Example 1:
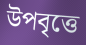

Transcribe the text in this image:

উপবৃত্তে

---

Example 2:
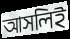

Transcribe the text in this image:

আসলিই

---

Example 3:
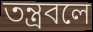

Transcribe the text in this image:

তন্ত্রবলে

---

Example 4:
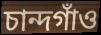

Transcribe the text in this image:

চান্দগাঁও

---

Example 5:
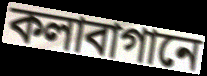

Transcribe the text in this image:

কলাবাগানে